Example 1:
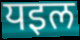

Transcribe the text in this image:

यइल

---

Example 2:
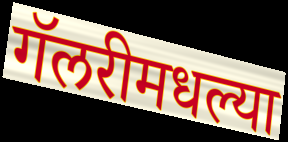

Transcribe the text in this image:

गॅलरीमधल्या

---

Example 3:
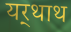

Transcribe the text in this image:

यर्थाथ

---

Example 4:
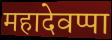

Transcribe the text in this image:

महादेवप्पा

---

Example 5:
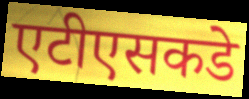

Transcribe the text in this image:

एटीएसकडे